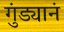
गुंड्यानं